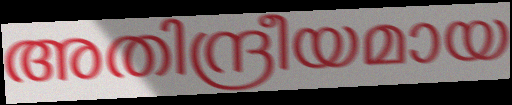
അതിന്ദ്രീയമായ